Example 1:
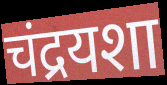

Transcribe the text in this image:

चंद्रयशा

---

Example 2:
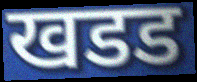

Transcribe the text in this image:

खडड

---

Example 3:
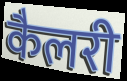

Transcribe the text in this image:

कैलरी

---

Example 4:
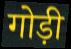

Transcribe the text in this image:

गोड़ी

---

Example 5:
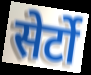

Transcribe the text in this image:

सेर्टो